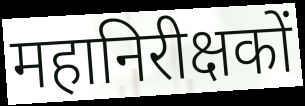
महानिरीक्षकों